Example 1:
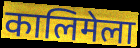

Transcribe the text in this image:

कालिमेला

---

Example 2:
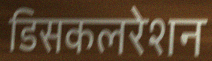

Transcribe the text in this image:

डिसकलरेशन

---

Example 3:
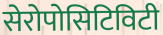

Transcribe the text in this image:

सेरोपोसिटिविटी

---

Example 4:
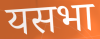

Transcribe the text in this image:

यसभा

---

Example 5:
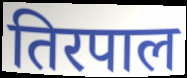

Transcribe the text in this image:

तिरपाल